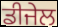
ਡੀਜੇਲ